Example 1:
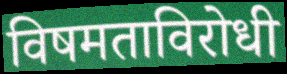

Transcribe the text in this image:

विषमताविरोधी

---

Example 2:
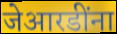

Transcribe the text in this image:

जेआरडींना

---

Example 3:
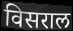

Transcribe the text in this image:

विसराल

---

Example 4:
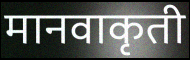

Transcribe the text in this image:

मानवाकृती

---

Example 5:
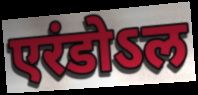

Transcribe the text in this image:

एरंडोऽल